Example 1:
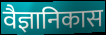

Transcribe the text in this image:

वैज्ञानिकास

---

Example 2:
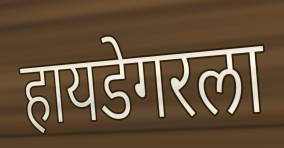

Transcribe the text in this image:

हायडेगरला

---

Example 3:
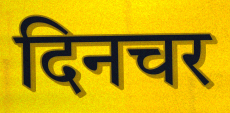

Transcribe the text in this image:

दिनचर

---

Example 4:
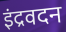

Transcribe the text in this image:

इंद्रवदन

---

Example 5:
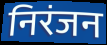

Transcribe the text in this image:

निरंजन